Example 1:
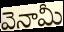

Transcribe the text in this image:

వెనామీ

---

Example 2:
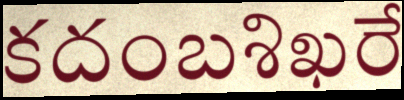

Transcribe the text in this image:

కదంబశిఖరే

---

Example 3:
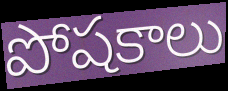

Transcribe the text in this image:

పోషకాలు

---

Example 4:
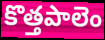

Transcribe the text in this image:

కొత్తపాలెం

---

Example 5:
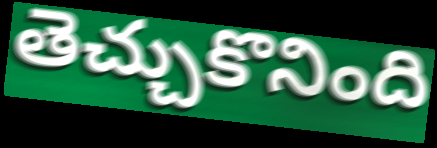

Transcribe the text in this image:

తెచ్చుకొనింది